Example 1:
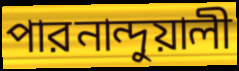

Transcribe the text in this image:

পারনান্দুয়ালী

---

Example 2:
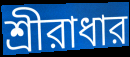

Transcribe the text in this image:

শ্রীরাধার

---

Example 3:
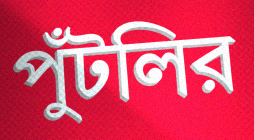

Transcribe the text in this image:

পুঁটলির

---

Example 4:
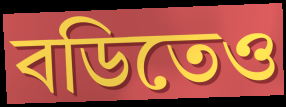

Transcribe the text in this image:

বডিতেও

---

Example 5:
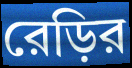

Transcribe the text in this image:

রেড়ির